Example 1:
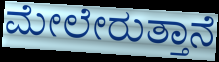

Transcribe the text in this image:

ಮೇಲೇರುತ್ತಾನೆ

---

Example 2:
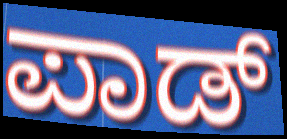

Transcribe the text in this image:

ಪಾಡ್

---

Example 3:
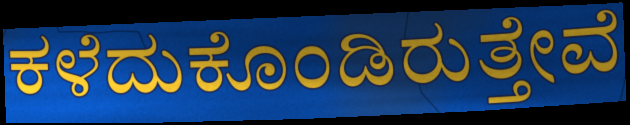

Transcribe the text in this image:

ಕಳೆದುಕೊಂಡಿರುತ್ತೇವೆ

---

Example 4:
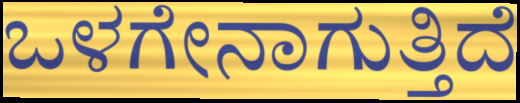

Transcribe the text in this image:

ಒಳಗೇನಾಗುತ್ತಿದೆ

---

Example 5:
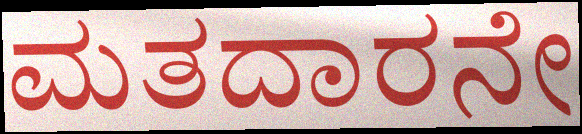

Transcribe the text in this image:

ಮತದಾರನೇ